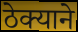
ठेक्याने